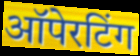
ऑपेरटिंग